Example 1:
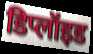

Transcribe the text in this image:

डिप्लॉइड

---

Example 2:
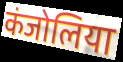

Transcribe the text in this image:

कंजोलिया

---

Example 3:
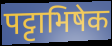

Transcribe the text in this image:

पट्टाभिषेक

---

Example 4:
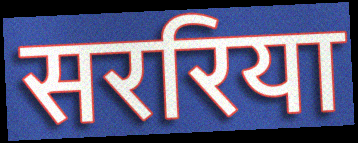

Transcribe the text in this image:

सररिया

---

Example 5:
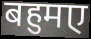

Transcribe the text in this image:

बहुमए